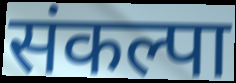
संकल्पा